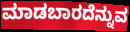
ಮಾಡಬಾರದೆನ್ನುವ